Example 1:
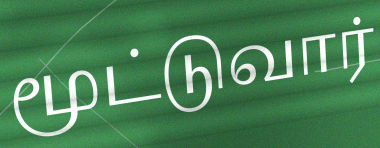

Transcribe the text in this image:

மூட்டுவார்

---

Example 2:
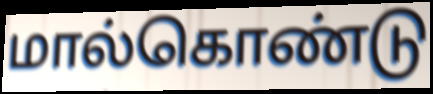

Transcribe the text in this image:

மால்கொண்டு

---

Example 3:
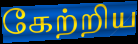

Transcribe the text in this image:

கேற்றிய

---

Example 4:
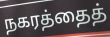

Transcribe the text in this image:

நகரத்தைத்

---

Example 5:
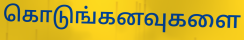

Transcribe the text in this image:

கொடுங்கனவுகளை